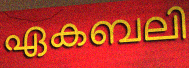
ഏകബലി